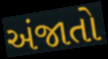
અંજાતો